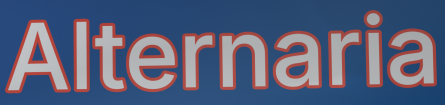
Alternaria